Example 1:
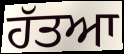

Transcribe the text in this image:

ਹੱਤਆ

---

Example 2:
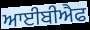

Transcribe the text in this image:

ਆਈਬੀਐਫ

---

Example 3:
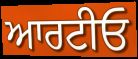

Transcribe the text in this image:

ਆਰਟੀਓ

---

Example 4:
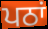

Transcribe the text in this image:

ਪਠਾਂ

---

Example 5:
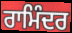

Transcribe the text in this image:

ਰਾਮਿੰਦਰ